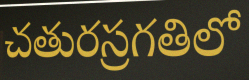
చతురస్రగతిలో